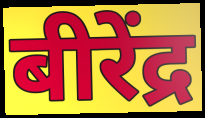
बीरेंद्र